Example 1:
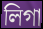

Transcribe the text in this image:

লিগা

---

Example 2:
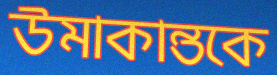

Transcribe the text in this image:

উমাকান্তকে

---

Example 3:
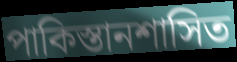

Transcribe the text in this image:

পাকিস্তানশাসিত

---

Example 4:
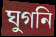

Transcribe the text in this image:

ঘুগনি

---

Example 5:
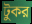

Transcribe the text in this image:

টুকর